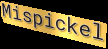
Mispickel